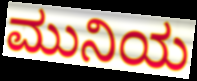
ಮುನಿಯ